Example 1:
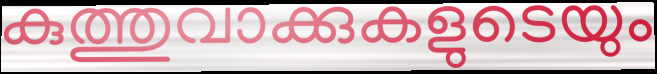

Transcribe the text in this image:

കുത്തുവാക്കുകളുടെയും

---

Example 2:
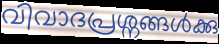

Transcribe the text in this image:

വിവാദപ്രശ്നങ്ങൾക്കു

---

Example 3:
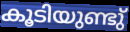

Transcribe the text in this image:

കൂടിയുണ്ടു്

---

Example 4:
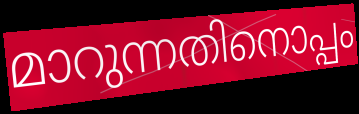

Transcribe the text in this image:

മാറുന്നതിനൊപ്പം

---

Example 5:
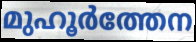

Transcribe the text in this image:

മുഹൂർത്തേന